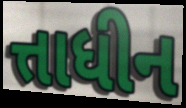
ત્તાધીન